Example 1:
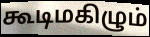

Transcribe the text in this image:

கூடிமகிழும்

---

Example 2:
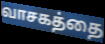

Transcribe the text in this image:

வாசகத்தை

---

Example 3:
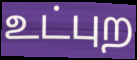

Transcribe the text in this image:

உட்புற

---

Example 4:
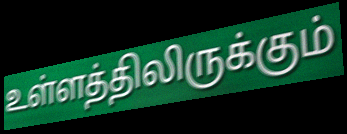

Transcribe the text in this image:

உள்ளத்திலிருக்கும்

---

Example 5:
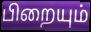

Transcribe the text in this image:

பிறையும்